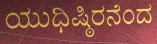
ಯುಧಿಷ್ಠಿರನೆಂದ